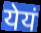
येयं